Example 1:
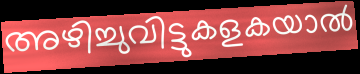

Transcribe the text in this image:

അഴിച്ചുവിട്ടുകളകയാൽ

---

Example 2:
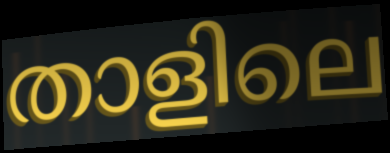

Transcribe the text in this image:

താളിലെ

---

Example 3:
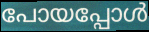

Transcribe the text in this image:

പോയപ്പോൾ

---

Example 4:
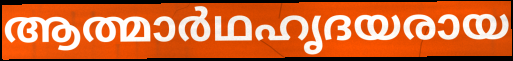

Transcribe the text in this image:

ആത്മാർഥഹൃദയരായ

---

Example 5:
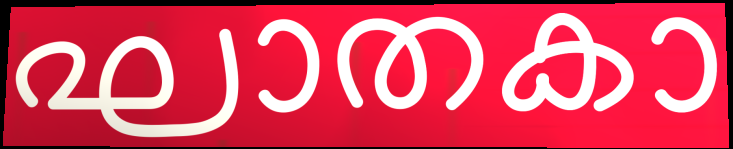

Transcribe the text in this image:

ഘാതകാ